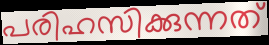
പരിഹസിക്കുന്നത്